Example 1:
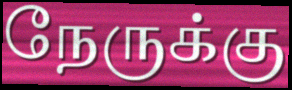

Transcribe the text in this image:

நேருக்கு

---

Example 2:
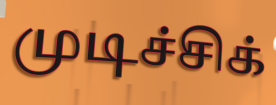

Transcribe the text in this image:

முடிச்சிக்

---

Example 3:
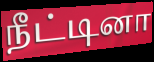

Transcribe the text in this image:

நீட்டினா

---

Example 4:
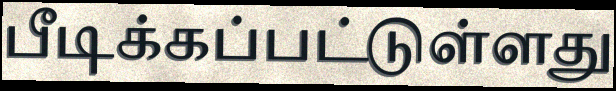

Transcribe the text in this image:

பீடிக்கப்பட்டுள்ளது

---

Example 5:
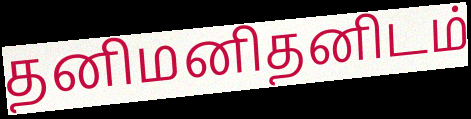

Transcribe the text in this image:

தனிமனிதனிடம்